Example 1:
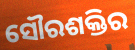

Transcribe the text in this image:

ସୌରଶକ୍ତିର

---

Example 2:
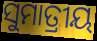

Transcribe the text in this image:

ସୁମାତ୍ରୀୟ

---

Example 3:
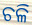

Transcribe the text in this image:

ଚଳି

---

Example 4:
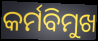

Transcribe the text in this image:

କର୍ମବିମୁଖ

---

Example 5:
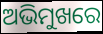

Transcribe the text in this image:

ଅଭିମୁଖରେ